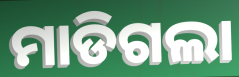
ମାଡିଗଲା